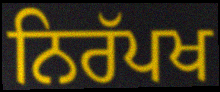
ਨਿਰੱਪਖ